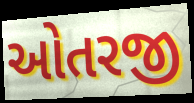
ઓતરજી